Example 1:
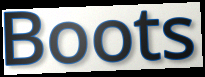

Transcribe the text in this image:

Boots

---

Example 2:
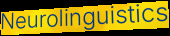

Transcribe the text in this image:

Neurolinguistics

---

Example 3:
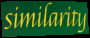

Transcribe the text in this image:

similarity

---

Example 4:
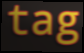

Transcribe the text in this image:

tag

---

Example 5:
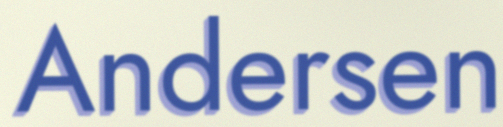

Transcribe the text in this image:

Andersen